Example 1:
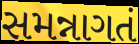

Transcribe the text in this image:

સમન્નાગતં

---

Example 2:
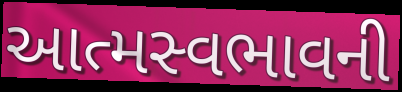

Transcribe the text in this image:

આત્મસ્વભાવની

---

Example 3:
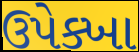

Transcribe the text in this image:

ઉપેક્ખા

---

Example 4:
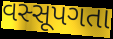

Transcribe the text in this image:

વસ્સૂપગતા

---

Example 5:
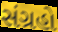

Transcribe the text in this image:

સંગ્રહો